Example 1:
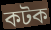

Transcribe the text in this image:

কটক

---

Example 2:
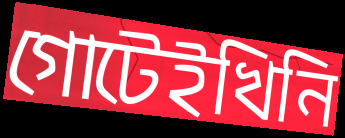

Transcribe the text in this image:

গোটেইখিনি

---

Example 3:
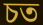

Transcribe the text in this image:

চত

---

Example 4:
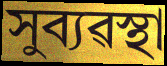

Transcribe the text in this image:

সুব্যৱস্থা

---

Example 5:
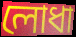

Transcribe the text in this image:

লোধা